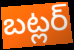
బట్లర్